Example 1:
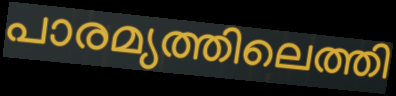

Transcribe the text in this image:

പാരമ്യത്തിലെത്തി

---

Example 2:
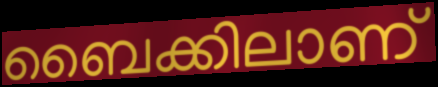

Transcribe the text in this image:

ബൈക്കിലാണ്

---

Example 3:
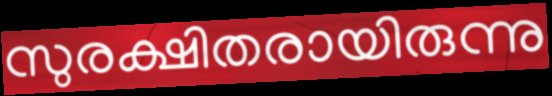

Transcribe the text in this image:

സുരക്ഷിതരായിരുന്നു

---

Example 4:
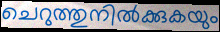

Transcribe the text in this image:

ചെറുത്തുനിൽക്കുകയും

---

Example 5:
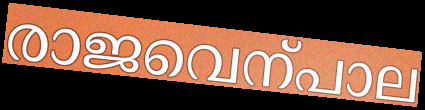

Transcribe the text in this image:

രാജവെന്പാല